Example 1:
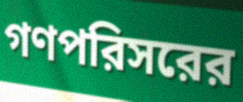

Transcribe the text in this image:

গণপরিসরের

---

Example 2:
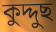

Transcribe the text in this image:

কুদ্দুছ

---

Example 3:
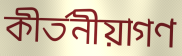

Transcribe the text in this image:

কীর্তনীয়াগণ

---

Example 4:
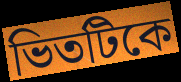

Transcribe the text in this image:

ভিতটিকে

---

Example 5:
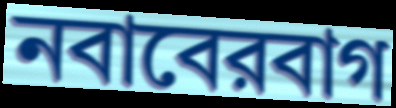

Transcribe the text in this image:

নবাবেরবাগ